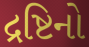
દ્રષ્ટિનો